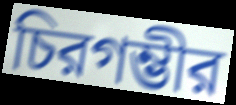
চিরগম্ভীর